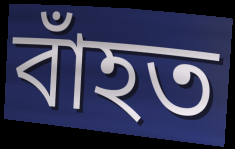
বাঁহত